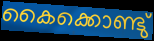
കൈക്കൊണ്ടു്